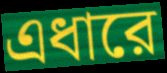
এধারে